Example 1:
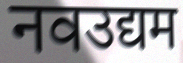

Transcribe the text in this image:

नवउद्यम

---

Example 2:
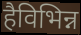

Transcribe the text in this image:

हैविभिन्न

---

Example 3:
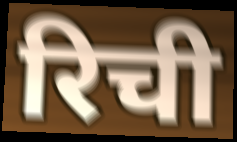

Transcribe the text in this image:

रिची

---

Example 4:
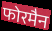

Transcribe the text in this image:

फोरमैन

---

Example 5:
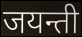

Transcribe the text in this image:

जयन्ती